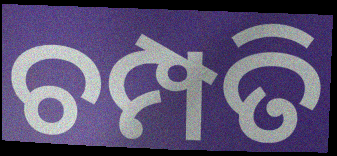
ଚମ୍ପତି